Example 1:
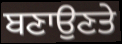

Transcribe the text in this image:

ਬਣਾਉਣਤੇ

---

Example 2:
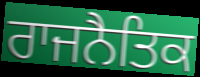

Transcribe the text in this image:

ਰਾਜਨੈਤਿਕ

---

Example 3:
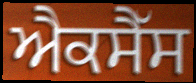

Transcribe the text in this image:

ਐਕਸੈੱਸ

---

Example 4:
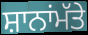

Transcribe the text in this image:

ਸ਼ਾਨਾਂਮੱਤੇ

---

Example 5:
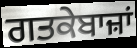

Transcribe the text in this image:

ਗਤਕੇਬਾਜ਼ਾਂ